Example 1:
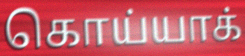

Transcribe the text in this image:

கொய்யாக்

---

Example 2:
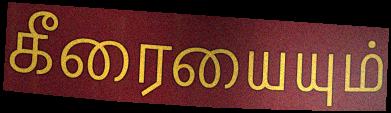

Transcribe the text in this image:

கீரையையும்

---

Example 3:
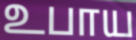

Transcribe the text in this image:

உபாய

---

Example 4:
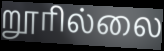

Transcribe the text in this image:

றூரில்லை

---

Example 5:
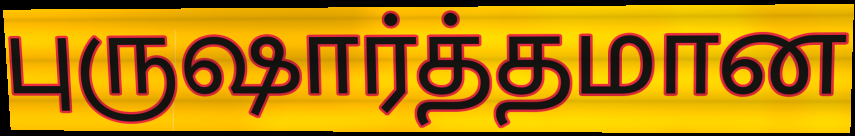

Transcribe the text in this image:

புருஷார்த்தமான